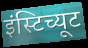
इंस्टिच्यूट